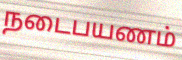
நடைபயணம்